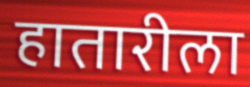
हातारीला